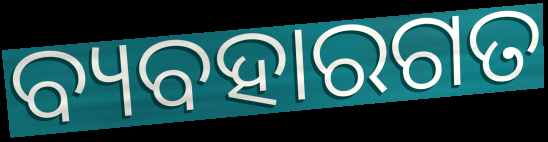
ବ୍ୟବହାରଗତ